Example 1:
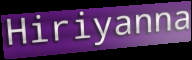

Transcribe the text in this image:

Hiriyanna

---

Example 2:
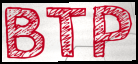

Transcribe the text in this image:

BTP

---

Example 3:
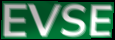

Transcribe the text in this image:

EVSE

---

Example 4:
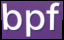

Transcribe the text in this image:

bpf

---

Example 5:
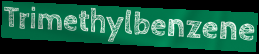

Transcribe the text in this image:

Trimethylbenzene